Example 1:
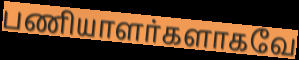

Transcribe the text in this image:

பணியாளர்களாகவே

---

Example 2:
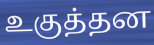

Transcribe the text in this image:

உகுத்தன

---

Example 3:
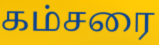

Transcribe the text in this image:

கம்சரை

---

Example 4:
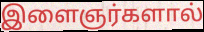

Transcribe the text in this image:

இளைஞர்களால்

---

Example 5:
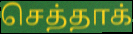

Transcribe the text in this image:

செத்தாக்